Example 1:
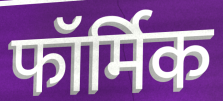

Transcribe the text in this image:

फॉर्मिक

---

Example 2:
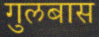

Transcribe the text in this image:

गुलबास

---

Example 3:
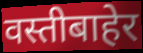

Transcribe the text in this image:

वस्तीबाहेर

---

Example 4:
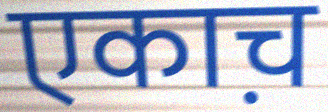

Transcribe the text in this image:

एकाच़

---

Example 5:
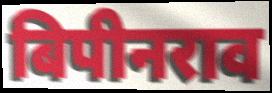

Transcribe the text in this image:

बिपीनराव